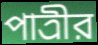
পাত্রীর